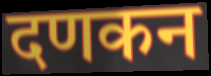
दणकन